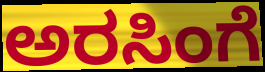
ಅರಸಿಂಗೆ